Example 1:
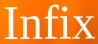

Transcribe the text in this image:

Infix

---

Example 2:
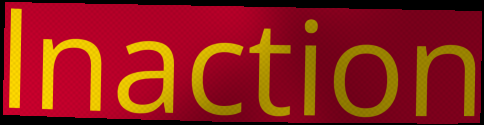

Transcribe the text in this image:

lnaction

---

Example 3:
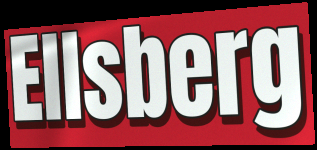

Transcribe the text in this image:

Ellsberg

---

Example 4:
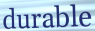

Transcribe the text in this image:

durable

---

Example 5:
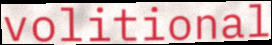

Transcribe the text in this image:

volitional